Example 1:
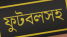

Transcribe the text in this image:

ফুটবলসহ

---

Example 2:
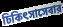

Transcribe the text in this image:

চিকিৎসাসেবার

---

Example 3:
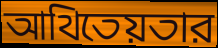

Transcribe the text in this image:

আথিতেয়তার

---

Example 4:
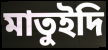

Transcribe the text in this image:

মাতুইদি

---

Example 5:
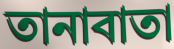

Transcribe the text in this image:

তানাবাতা